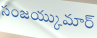
సంజయ్కుమార్